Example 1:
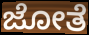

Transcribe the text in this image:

ಜೋತೆ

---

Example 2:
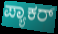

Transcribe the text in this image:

ಪ್ಯಾಕರ್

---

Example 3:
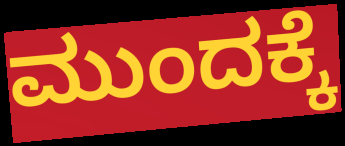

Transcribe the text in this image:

ಮುಂದಕ್ಕೆ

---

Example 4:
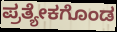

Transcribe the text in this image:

ಪ್ರತ್ಯೇಕಗೊಂಡ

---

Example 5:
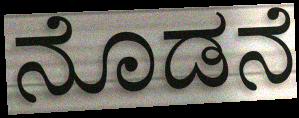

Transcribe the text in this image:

ನೊಡನೆ